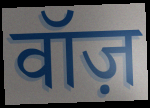
वॉज़